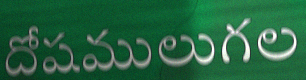
దోషములుగల